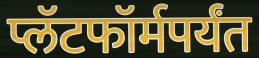
प्लॅटफॉर्मपर्यंत